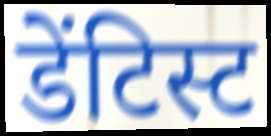
डेंटिस्ट